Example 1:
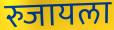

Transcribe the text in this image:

रुजायला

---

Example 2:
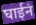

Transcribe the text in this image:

घाईनं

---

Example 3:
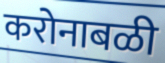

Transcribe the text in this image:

करोनाबळी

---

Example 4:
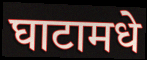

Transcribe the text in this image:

घाटामधे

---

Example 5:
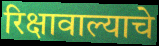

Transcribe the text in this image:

रिक्षावाल्याचे